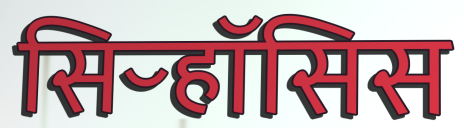
सिऱ्हॉसिस